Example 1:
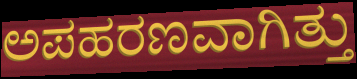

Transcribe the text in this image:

ಅಪಹರಣವಾಗಿತ್ತು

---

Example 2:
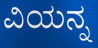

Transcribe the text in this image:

ವಿಯನ್ನ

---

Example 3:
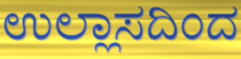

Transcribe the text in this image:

ಉಲ್ಲಾಸದಿಂದ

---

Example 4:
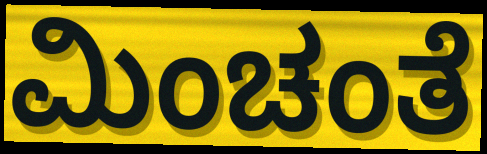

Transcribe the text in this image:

ಮಿಂಚಂತೆ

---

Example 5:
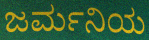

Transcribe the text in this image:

ಜರ್ಮನಿಯ